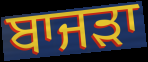
ਬਾਜਡ਼ਾ